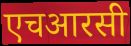
एचआरसी